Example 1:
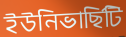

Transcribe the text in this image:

ইউনিভাৰ্ছিটি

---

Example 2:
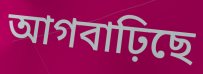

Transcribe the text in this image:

আগবাঢ়িছে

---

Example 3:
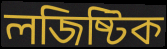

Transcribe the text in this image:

লজিষ্টিক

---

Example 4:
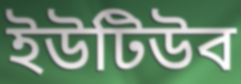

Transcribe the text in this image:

ইউটিউব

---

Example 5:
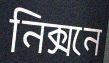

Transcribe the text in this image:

নিক্সনে